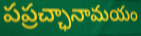
పప్రచ్ఛానామయం